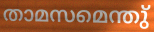
താമസമെന്തു്